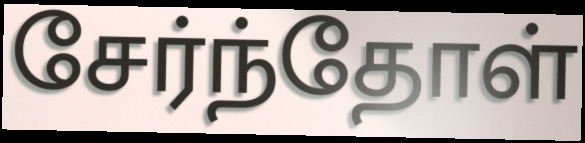
சேர்ந்தோள்